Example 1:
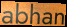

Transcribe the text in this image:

abhan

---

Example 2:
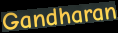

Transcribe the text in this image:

Gandharan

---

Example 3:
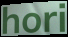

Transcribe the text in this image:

hori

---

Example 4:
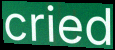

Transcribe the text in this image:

cried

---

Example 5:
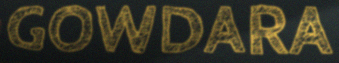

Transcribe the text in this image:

GOWDARA